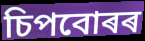
চিপবোৰৰ